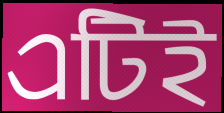
এটিই